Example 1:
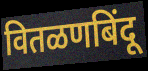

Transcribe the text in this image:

वितळणबिंदू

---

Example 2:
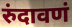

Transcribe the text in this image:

रुंदावणं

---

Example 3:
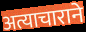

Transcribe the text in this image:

अत्याचाराने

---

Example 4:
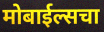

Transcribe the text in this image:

मोबाईल्सचा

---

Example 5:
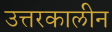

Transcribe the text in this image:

उत्तरकालीन